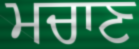
ਮਚਾਣ